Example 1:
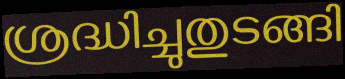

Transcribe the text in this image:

ശ്രദ്ധിച്ചുതുടങ്ങി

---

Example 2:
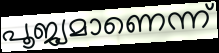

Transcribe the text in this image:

പൂജ്യമാണെന്ന്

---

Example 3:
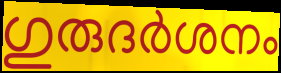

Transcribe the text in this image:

ഗുരുദർശനം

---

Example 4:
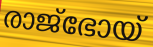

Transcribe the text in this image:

രാജ്ഭോയ്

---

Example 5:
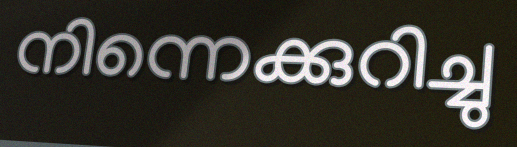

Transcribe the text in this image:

നിന്നെക്കുറിച്ചു